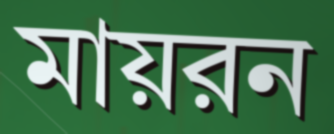
মায়রন